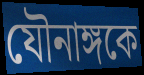
যৌনাঙ্গকে